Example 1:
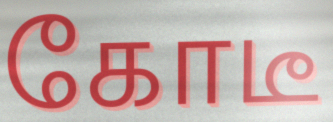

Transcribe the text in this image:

கோடீ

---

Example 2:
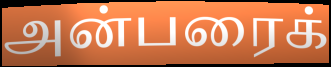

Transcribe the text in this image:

அன்பரைக்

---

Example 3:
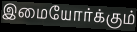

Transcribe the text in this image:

இமையோர்க்கும்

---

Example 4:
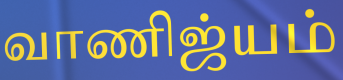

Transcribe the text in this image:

வாணிஜ்யம்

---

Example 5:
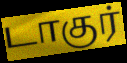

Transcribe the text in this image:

டாகுர்